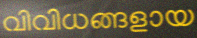
വിവിധങ്ങളായ